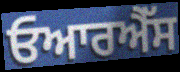
ਓਆਰਐੱਸ